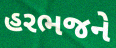
હરભજને